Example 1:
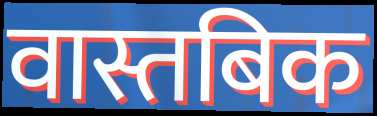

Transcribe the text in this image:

वास्तबिक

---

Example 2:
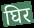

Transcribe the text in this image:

घिर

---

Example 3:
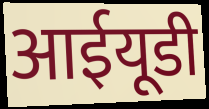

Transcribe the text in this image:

आईयूडी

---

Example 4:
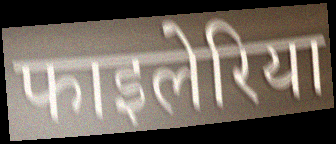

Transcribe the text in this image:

फाइलेरिया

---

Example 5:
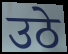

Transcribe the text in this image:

उठे